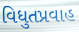
વિધુતપ્રવાહ